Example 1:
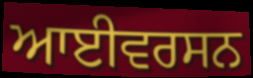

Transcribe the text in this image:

ਆਈਵਰਸਨ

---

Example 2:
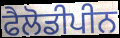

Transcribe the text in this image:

ਫੈਲੋਡੀਪੀਨ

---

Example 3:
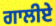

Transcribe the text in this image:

ਗਾਲੀਏ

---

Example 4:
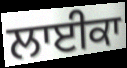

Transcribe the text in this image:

ਲਾਈਕਾ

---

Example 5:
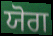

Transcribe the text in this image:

ਯੋਗ